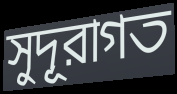
সুদূরাগত